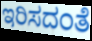
ಇರಿಸದಂತೆ